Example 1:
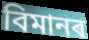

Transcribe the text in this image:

বিমানৰ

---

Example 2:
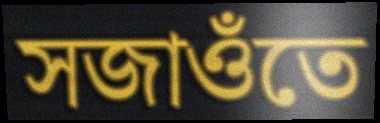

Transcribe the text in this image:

সজাওঁতে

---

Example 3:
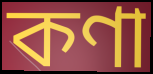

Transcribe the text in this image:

কণা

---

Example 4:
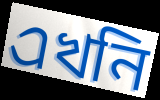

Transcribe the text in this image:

এখনি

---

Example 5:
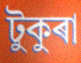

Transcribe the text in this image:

টুকুৰা